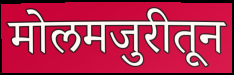
मोलमजुरीतून